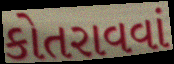
કોતરાવવાં